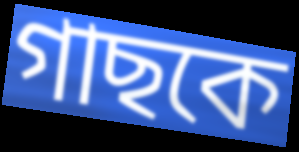
গাছকে